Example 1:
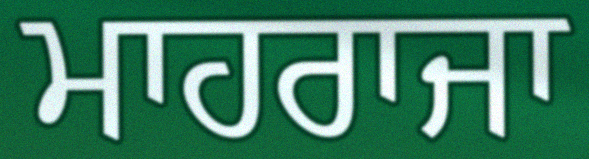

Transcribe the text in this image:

ਮਾਹਰਾਜਾ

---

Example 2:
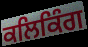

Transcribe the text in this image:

ਕਲਿਕਿੰਗ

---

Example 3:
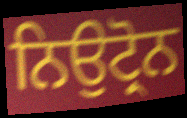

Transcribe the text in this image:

ਨਿਉਟ੍ਰੋਨ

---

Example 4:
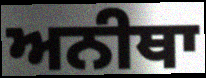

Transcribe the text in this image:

ਅਨੀਥਾ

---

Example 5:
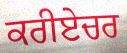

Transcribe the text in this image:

ਕਰੀਏਚਰ